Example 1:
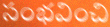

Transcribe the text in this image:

సంభవించి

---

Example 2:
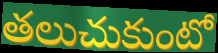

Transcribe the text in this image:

తలుచుకుంటో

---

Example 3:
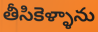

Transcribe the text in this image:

తీసికెళ్ళాను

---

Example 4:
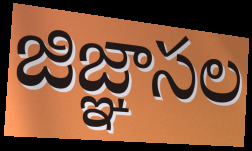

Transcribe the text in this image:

జిజ్ఞాసల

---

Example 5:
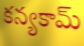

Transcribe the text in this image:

కన్యకామ్